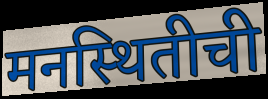
मनस्थितीची